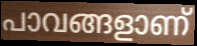
പാവങ്ങളാണ്